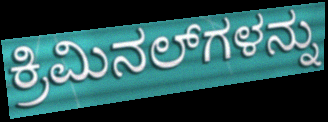
ಕ್ರಿಮಿನಲ್‍ಗಳನ್ನು